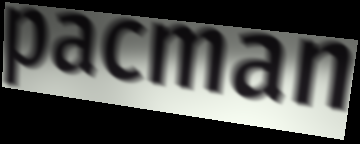
pacman